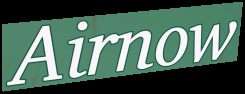
Airnow